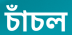
চাঁচল